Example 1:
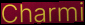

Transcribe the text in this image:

Charmi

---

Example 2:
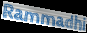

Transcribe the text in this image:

Rammadhi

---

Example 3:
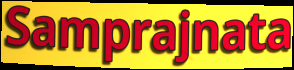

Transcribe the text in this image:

Samprajnata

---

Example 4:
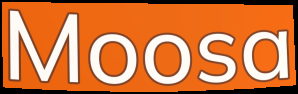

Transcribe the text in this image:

Moosa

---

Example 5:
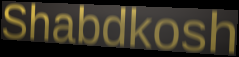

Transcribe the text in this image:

Shabdkosh